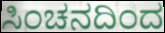
ಸಿಂಚನದಿಂದ